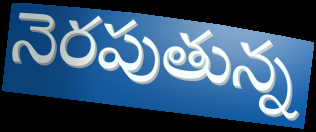
నెరపుతున్న